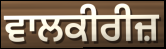
ਵਾਲਕੀਰੀਜ਼